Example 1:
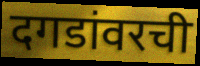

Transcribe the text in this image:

दगडांवरची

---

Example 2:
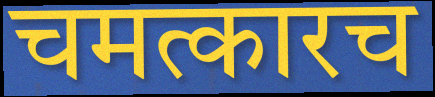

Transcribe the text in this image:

चमत्कारच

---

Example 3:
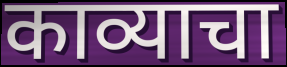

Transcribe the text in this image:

काव्याचा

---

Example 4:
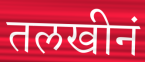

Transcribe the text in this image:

तलखीनं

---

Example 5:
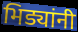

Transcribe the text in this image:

भिड्यांनी